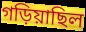
গড়িয়াছিল